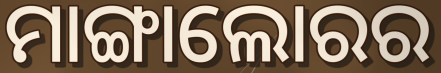
ମାଙ୍ଗାଲୋରର